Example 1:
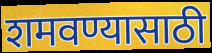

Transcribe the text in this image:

शमवण्यासाठी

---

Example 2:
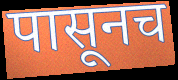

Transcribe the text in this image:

पासूनच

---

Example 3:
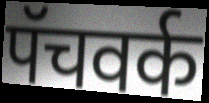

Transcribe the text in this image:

पॅचवर्क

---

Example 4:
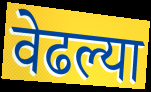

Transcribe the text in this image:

वेढल्या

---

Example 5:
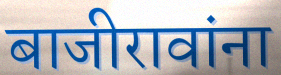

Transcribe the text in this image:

बाजीरावांना